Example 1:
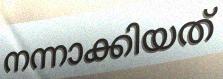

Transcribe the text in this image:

നന്നാക്കിയത്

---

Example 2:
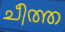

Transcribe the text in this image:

ചീത്ത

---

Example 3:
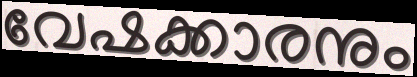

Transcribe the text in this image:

വേഷക്കാരനും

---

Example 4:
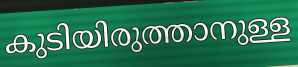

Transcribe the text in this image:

കുടിയിരുത്താനുള്ള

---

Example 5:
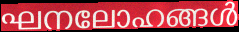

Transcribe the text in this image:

ഘനലോഹങ്ങൾ